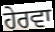
ਹੇਰਵਾ